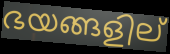
ഭയങ്ങളില്